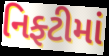
નિફ્ટીમાં